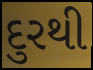
દુરથી